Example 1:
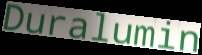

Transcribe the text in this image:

Duralumin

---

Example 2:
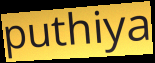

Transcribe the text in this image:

puthiya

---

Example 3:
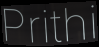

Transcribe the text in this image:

Prithi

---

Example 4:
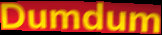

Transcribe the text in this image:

Dumdum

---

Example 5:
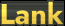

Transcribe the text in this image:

Lank